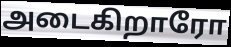
அடைகிறாரோ